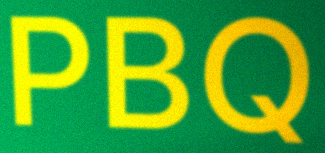
PBQ